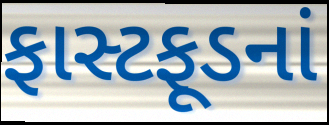
ફાસ્ટફૂડનાં